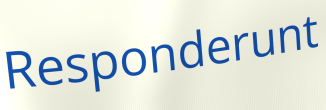
Responderunt